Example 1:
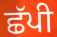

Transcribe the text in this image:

ਛੱਪੀ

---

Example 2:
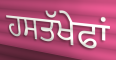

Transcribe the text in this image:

ਹਸਤੱਖੇਫਾਂ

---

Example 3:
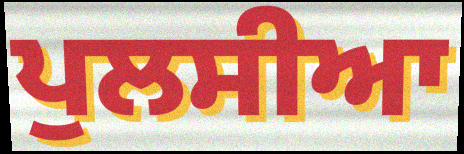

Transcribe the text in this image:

ਪੁਲਸੀਆ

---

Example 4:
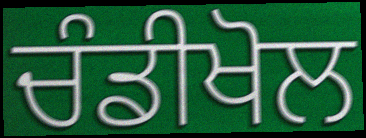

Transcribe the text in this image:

ਚੰਡੀਖੋਲ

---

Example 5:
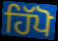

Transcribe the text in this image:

ਹਿੱਪੋ